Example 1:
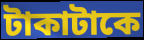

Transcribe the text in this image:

টাকাটাকে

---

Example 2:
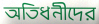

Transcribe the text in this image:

অতিধনীদের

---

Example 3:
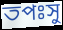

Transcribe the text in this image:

তপঃসু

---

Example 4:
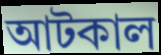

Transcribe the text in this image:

আটকাল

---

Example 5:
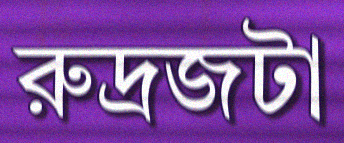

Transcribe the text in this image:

রুদ্রজটা